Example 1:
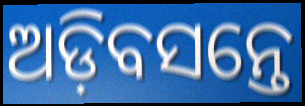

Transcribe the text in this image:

ଅଡ଼ିବସନ୍ତେ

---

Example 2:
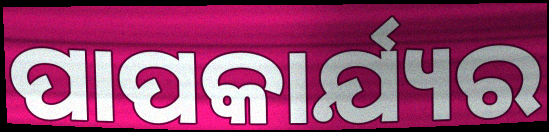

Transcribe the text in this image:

ପାପକାର୍ଯ୍ୟର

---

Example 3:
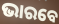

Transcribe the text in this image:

ଭାରବେ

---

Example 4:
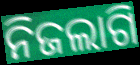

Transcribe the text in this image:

ନିଜଲାଗି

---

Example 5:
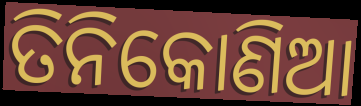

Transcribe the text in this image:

ତିନିକୋଣିଆ